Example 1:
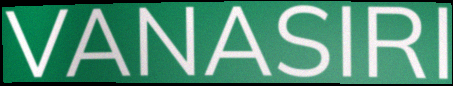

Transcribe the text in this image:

VANASIRI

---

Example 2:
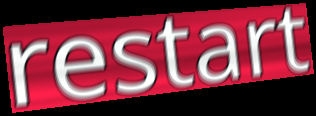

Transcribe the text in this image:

restart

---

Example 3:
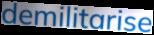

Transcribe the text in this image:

demilitarise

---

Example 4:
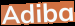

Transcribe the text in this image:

Adiba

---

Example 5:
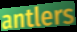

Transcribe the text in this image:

antlers